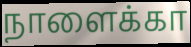
நாளைக்கா